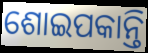
ଶୋଇପକାନ୍ତି